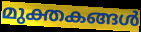
മുക്തകങ്ങൾ